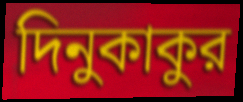
দিনুকাকুর